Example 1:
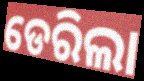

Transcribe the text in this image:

ଡେରିଲା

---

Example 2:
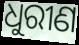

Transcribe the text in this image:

ଧୁରୀଣ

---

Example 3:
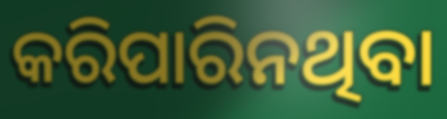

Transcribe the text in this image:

କରିପାରିନଥିବା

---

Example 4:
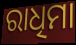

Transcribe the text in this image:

ରାଧିମା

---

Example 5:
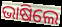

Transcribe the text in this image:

ଭାଷିଲେ